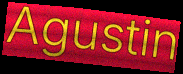
Agustin